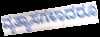
ವ್ಯತ್ಯಾಸಗಳಾದರೂ